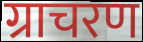
ग्राचरण